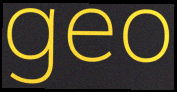
geo